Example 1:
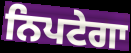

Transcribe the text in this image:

ਨਿਪਟੇਗਾ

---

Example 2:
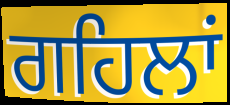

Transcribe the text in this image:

ਗਹਿਲਾਂ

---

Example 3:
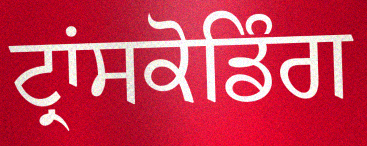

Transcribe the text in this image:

ਟ੍ਰਾਂਸਕੋਡਿੰਗ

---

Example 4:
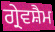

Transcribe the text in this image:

ਗ੍ਰੇਵਸ਼ੈਮ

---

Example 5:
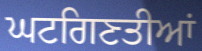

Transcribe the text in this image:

ਘਟਗਿਣਤੀਆਂ